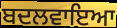
ਬਦਲਵਾਇਆ